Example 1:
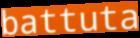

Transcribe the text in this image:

battuta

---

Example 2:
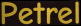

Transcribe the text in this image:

Petrel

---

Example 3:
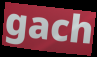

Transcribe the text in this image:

gach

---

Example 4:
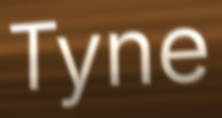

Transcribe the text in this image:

Tyne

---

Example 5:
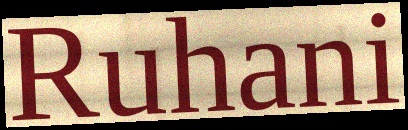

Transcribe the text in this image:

Ruhani